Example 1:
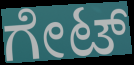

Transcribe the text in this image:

ಗೇಟ್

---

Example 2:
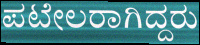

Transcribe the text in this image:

ಪಟೇಲರಾಗಿದ್ದರು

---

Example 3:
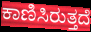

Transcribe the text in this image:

ಕಾಣಿಸಿರುತ್ತದೆ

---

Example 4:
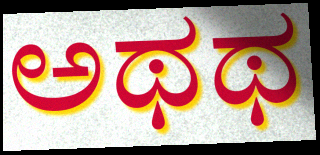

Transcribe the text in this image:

ಅಥಥ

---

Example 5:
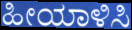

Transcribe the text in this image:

ಹೀಯಾಳಿಸಿ